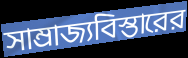
সাম্রাজ্যবিস্তারের